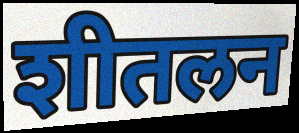
शीतलन